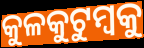
କୁଳକୁଟୁମ୍ବକୁ